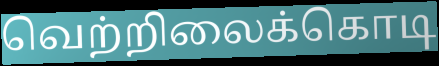
வெற்றிலைக்கொடி